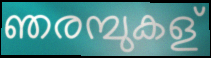
ഞരമ്പുകള്